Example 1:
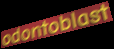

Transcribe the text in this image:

odontoblast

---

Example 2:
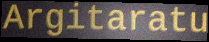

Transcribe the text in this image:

Argitaratu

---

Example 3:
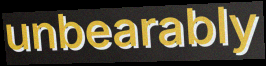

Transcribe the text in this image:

unbearably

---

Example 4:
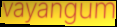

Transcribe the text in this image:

vayangum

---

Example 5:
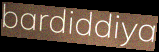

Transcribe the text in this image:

bardiddiya